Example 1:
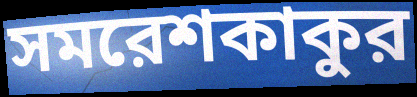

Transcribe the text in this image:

সমরেশকাকুর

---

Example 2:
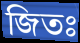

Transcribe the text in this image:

জিতঃ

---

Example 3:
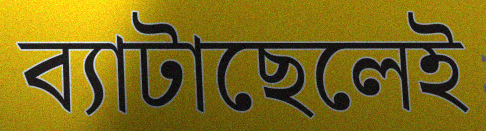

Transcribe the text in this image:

ব্যাটাছেলেই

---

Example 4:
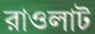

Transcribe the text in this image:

রাওলাট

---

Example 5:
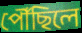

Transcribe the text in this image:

পৌঁছিলে